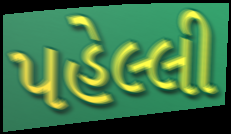
પહેલ્લી